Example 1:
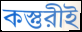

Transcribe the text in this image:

কস্তুরীই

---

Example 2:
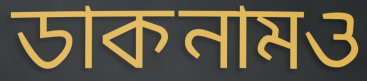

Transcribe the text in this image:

ডাকনামও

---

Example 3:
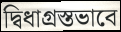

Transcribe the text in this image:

দ্বিধাগ্রস্তভাবে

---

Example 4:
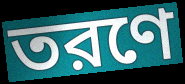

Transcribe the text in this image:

তরণে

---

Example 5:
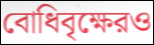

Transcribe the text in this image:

বোধিবৃক্ষেরও